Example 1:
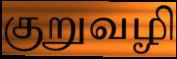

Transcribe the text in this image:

குறுவழி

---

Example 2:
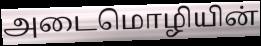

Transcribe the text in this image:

அடைமொழியின்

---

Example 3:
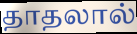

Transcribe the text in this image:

தாதலால்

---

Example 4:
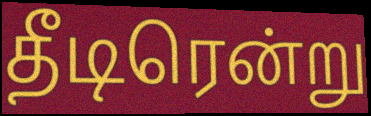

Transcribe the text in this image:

தீடிரென்று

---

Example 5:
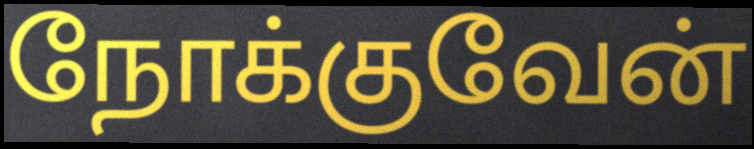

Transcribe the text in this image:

நோக்குவேன்